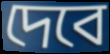
দেবে